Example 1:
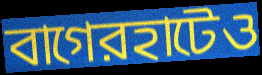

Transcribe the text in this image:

বাগেরহাটেও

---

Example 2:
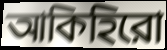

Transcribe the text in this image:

আকিহিরো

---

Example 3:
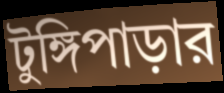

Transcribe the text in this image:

টুঙ্গিপাড়ার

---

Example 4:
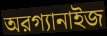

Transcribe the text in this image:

অরগ্যানাইজ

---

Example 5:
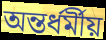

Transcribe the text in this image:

অন্তর্ধর্মীয়